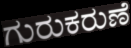
ಗುರುಕರುಣೆ